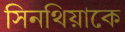
সিনথিয়াকে